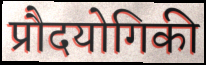
प्रौदयोगिकी